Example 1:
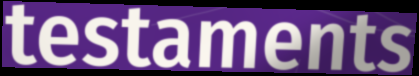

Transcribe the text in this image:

testaments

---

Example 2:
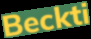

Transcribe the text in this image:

Beckti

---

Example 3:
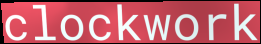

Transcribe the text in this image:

clockwork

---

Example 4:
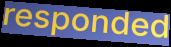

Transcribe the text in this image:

responded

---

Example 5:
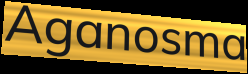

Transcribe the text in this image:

Aganosma